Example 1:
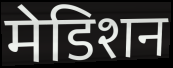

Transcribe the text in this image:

मेडिशन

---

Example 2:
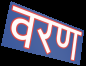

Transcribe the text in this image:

वरण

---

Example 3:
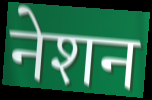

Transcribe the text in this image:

नेशन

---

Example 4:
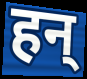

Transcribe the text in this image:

हन्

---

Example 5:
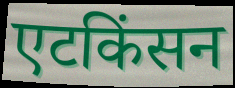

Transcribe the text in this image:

एटकिंसन